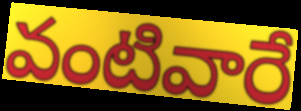
వంటివారే